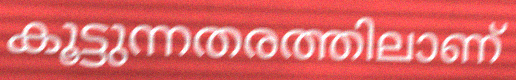
കൂട്ടുന്നതരത്തിലാണ്